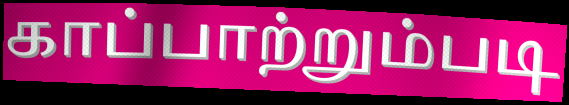
காப்பாற்றும்படி